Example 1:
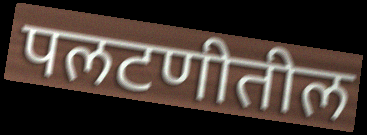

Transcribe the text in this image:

पलटणीतील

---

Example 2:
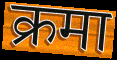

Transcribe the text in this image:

क्रमा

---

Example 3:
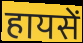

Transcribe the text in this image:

हायसें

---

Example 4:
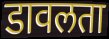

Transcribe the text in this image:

डावलता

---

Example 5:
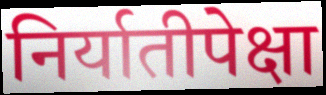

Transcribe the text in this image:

निर्यातीपेक्षा